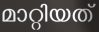
മാറ്റിയത്